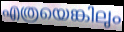
എത്രയെങ്കിലും